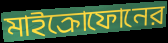
মাইক্রোফোনের